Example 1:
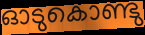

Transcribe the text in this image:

ഓടുകൊണ്ടു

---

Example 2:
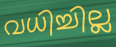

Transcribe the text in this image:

വധിച്ചില്ല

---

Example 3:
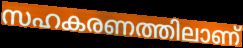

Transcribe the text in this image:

സഹകരണത്തിലാണ്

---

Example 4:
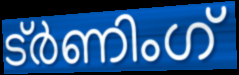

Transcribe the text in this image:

ട്ർണിംഗ്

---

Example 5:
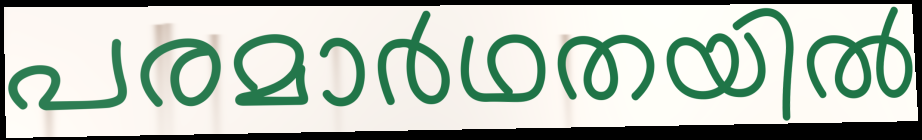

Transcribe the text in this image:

പരമാർഥതയിൽ